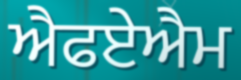
ਐਫਏਐਮ